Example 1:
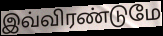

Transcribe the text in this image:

இவ்விரண்டுமே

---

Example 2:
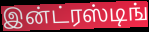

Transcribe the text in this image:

இன்ட்ரஸ்டிங்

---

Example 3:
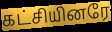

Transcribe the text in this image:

கட்சியினரே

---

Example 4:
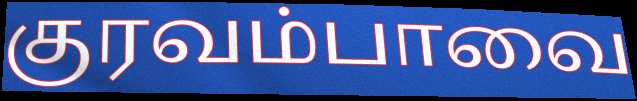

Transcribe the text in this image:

குரவம்பாவை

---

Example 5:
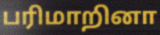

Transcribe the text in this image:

பரிமாறினா